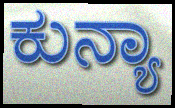
ಕುನ್ಯಾ